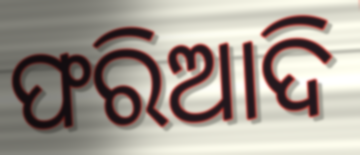
ଫରିଆଦି